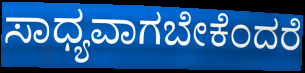
ಸಾಧ್ಯವಾಗಬೇಕೆಂದರೆ